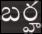
బర్హ